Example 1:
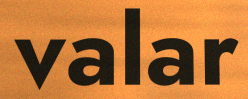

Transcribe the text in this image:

valar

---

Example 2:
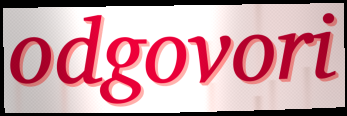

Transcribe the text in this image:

odgovori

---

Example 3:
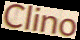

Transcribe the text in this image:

Clino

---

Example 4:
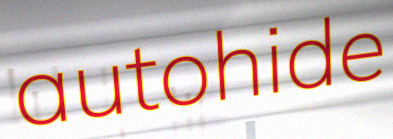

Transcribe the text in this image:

autohide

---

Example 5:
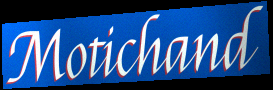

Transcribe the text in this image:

Motichand